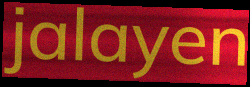
jalayen